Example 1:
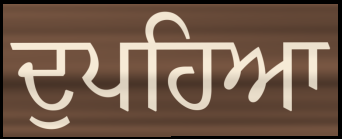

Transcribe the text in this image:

ਦੁਪਹਿਆ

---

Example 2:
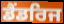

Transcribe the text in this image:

ਡੈਂਡਰਿਜ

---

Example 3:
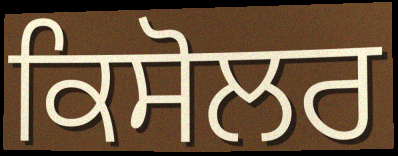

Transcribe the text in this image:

ਕਿਸੋਲਰ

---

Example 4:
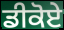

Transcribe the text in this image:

ਡੀਕੋਏ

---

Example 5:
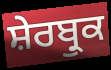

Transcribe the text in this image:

ਸ਼ੇਰਬ੍ਰੁਕ